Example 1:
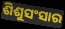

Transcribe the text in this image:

ଶିଶୁସଂସାର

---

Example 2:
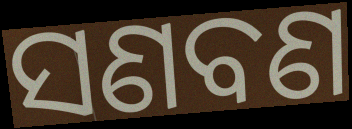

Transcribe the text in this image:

ସଣବଣ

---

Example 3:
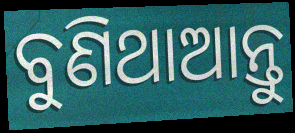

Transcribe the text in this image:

ବୁଣିଥାଆନ୍ତୁ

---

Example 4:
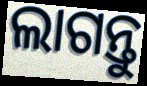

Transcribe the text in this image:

ଲାଗନ୍ତୁ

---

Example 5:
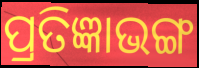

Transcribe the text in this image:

ପ୍ରତିଜ୍ଞାଭଙ୍ଗ